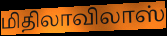
மிதிலாவிலாஸ்